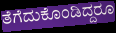
ತೆಗೆದುಕೊಂಡಿದ್ದರೂ